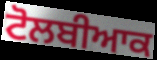
ਟੋਲਬੀਆਕ